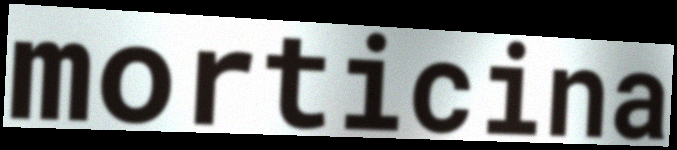
morticina